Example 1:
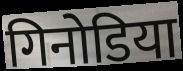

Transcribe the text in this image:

गिनोडिया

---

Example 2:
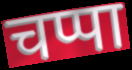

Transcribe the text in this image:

चप्पा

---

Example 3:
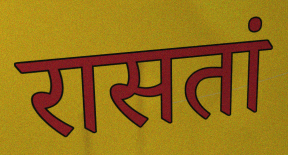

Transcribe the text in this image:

रासतां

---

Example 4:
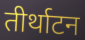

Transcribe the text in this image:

तीर्थाटन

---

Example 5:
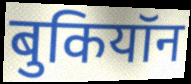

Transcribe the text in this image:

बुकियॉन